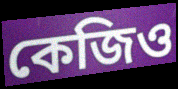
কেজিও